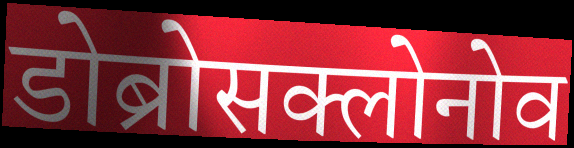
डोब्रोसक्लोनोव